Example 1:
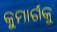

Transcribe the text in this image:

କୁମାର୍ଗକୁ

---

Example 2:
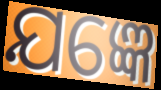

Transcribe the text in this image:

ଯଜ୍ଞେ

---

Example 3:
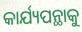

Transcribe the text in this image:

କାର୍ଯ୍ୟପନ୍ଥାକୁ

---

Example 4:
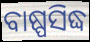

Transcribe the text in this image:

ବାଷ୍ପସିଦ୍ଧ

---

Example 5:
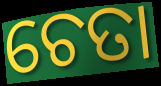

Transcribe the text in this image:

ଚେତା